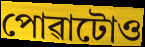
পোৱাটোও